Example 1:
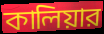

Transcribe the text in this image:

কালিয়ার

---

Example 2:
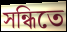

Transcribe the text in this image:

সন্ধিতে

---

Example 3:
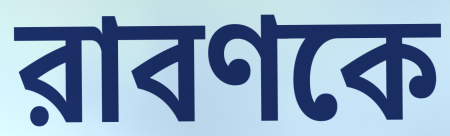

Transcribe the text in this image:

রাবণকে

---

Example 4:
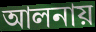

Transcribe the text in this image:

আলনায়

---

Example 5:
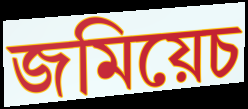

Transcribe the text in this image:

জমিয়েচ